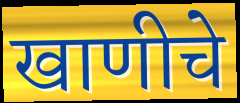
खाणीचे